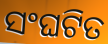
ସଂଘଟିତ